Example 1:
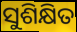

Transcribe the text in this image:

ସୁଶିକ୍ଷିତ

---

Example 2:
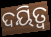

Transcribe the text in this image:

ଦୟିତ୍ୱ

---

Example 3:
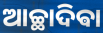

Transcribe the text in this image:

ଆଚ୍ଛାଦିଵା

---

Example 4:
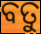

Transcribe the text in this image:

ବତୁ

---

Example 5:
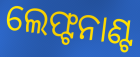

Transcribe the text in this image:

ଲେଫ୍ଟନାଣ୍ଟ